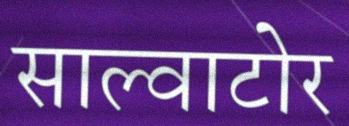
साल्वाटोर